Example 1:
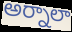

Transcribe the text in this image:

అర్నాలా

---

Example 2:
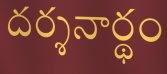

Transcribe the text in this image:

దర్శనార్థం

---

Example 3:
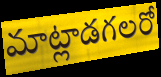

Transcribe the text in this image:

మాట్లాడగలరో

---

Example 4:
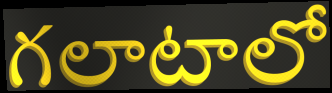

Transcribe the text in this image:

గలాటాలో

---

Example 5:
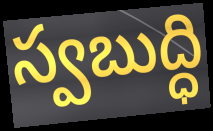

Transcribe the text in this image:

స్వబుద్ధి